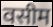
वसीम